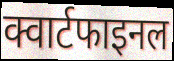
क्वार्टफाइनल